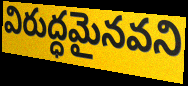
విరుద్ధమైనవని